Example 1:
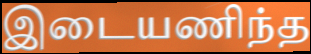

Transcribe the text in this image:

இடையணிந்த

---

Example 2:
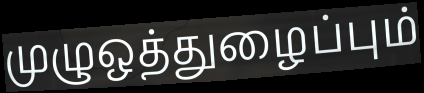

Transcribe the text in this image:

முழுஒத்துழைப்பும்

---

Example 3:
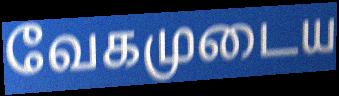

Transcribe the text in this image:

வேகமுடைய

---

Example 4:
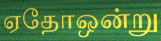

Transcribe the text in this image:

ஏதோஒன்று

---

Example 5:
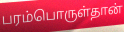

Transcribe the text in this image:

பரம்பொருள்தான்